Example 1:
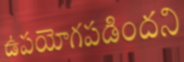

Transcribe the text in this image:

ఉపయోగపడిందని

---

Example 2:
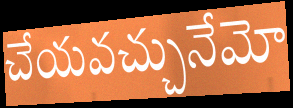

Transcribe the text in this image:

చేయవచ్చునేమో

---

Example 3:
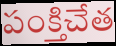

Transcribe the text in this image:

పంక్తిచేత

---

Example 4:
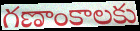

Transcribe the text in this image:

గణాంకాలకు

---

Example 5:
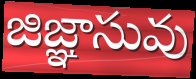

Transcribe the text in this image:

జిజ్ఞాసువు